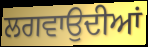
ਲਗਵਾਉਦੀਆਂ